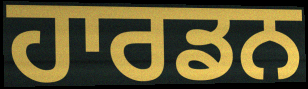
ਹਾਰਡਨ